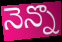
నెన్నొ